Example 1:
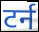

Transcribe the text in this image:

टर्न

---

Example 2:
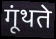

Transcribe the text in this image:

गूंथते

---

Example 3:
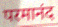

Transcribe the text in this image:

परमानंद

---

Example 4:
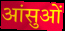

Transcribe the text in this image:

आंसुओं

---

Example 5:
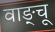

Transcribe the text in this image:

वाङ्चू